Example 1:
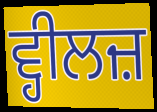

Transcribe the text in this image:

ਵ੍ਹੀਲਜ਼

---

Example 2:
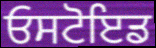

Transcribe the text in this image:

ਓਸਟੋਇਡ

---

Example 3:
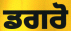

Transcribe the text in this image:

ਡਗਰੋ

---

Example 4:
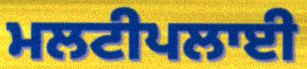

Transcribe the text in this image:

ਮਲਟੀਪਲਾਈ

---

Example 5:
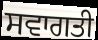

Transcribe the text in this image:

ਸਵਾਗਤੀ